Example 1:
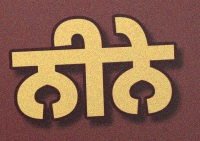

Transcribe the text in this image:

ਨੀਨੇ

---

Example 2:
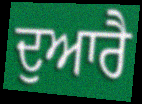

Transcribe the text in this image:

ਦੁਆਰੈ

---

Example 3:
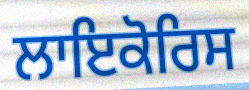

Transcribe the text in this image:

ਲਾਇਕੋਰਿਸ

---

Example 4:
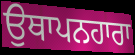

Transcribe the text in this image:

ਉਥਾਪਨਹਾਰਾ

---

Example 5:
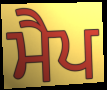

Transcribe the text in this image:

ਮੈਪ